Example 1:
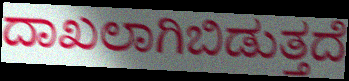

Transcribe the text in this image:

ದಾಖಲಾಗಿಬಿಡುತ್ತದೆ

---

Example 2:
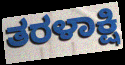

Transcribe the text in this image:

ತರಳಾಕ್ಷಿ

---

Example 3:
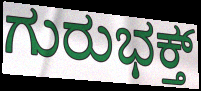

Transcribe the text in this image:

ಗುರುಭಕ್ತ್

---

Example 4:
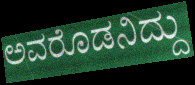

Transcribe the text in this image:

ಅವರೊಡನಿದ್ದು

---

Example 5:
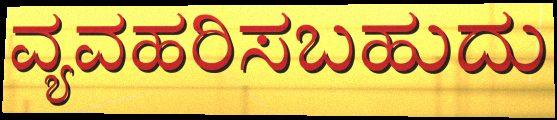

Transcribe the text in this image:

ವ್ಯವಹರಿಸಬಹುದು